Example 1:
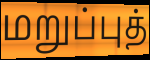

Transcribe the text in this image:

மறுப்புத்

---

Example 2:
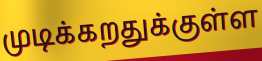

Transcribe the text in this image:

முடிக்கறதுக்குள்ள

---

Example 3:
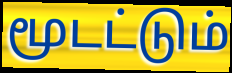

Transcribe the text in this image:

மூடட்டும்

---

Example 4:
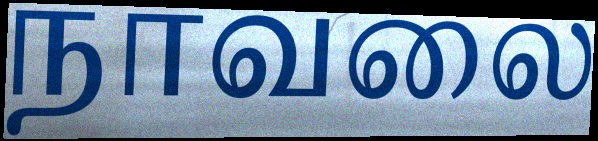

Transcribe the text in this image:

நாவலை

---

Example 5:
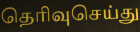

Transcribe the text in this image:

தெரிவுசெய்து